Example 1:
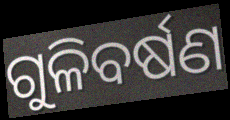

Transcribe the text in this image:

ଗୁଳିବର୍ଷଣ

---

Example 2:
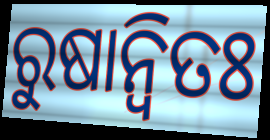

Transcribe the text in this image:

ରୁଷାନ୍ଵିତଃ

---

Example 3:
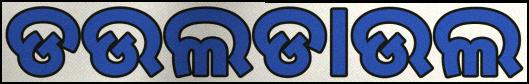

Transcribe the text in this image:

ଡଉଲଡାଉଲ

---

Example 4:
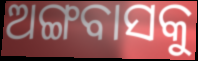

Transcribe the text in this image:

ଅଙ୍ଗବାସକୁ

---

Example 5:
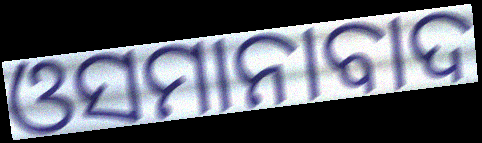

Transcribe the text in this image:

ଓସମାନାବାଦ